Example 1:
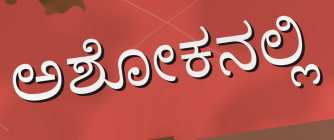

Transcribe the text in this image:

ಅಶೋಕನಲ್ಲಿ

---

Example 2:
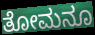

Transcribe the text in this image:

ತೋಮನೂ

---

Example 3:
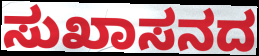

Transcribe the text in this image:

ಸುಖಾಸನದ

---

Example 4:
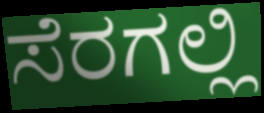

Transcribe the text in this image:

ಸೆರಗಲ್ಲಿ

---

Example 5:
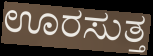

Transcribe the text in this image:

ಊರಸುತ್ತ